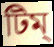
টিম্